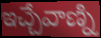
ఇచ్చేవాణ్ని